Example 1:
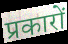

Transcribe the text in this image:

प्रकारों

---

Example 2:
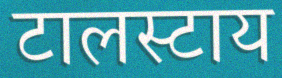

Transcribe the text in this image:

टालस्टाय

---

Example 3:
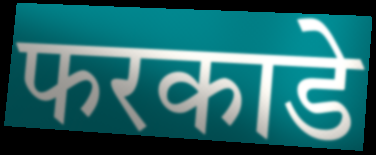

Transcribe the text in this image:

फरकाडे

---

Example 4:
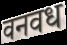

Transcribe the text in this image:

वनवध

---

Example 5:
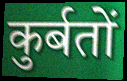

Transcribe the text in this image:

कुर्बतों